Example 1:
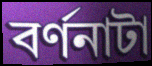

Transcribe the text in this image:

বর্ণনাটা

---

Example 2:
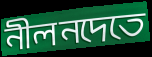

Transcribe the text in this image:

নীলনদেতে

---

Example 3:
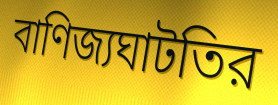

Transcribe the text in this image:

বাণিজ্যঘাটতির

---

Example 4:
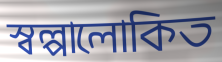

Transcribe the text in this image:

স্বল্পালোকিত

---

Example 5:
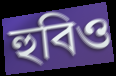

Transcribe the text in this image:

হুবিও